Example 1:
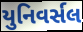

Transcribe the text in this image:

યુનિવર્સલ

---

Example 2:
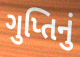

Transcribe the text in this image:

ગુપ્તિનું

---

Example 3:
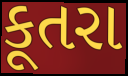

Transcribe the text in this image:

કૂતરા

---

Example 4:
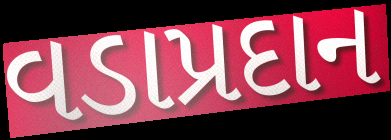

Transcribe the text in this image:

વડાપ્રદાન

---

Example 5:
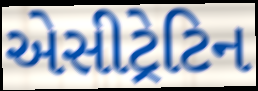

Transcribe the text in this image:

એસીટ્રેટિન